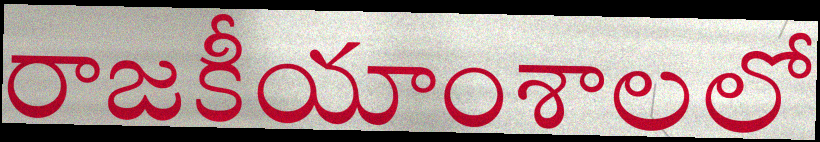
రాజకీయాంశాలలో